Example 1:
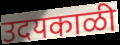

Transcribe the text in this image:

उदयकाळी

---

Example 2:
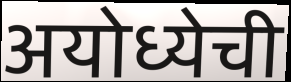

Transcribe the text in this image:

अयोध्येची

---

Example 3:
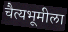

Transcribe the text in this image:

चैत्यभूमीला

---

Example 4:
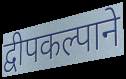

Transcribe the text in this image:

द्वीपकल्पाने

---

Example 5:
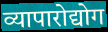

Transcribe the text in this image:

व्यापारोद्योग